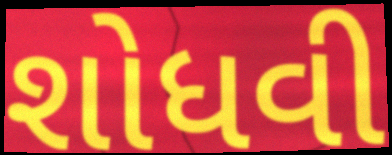
શોધવી